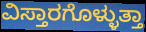
ವಿಸ್ತಾರಗೊಳ್ಳುತ್ತಾ